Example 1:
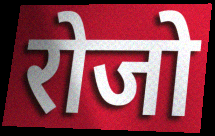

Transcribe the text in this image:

रोजो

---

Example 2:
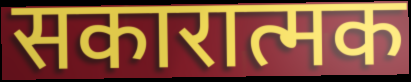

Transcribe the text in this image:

सकारात्मक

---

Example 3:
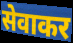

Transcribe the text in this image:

सेवाकर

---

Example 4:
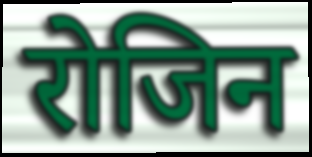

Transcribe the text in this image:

रोजिन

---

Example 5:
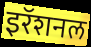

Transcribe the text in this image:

इरॅशनल